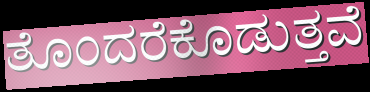
ತೊಂದರೆಕೊಡುತ್ತವೆ